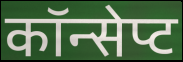
कॉन्सेप्ट